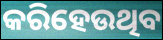
କରିହେଉଥିବ